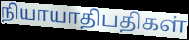
நியாயாதிபதிகள்